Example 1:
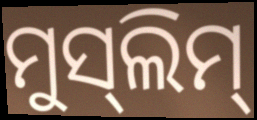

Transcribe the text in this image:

ମୁସ୍‌ଲିମ୍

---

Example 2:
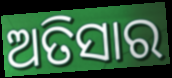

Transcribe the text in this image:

ଅତିସାର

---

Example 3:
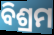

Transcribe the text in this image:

ବିଶ୍ରମ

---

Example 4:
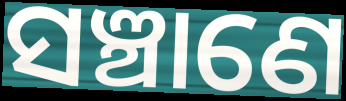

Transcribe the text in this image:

ସଞ୍ଚାଣେ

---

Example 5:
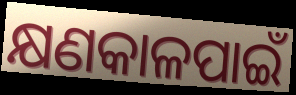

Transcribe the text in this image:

କ୍ଷଣକାଳପାଇଁ